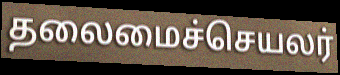
தலைமைச்செயலர்